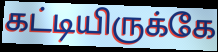
கட்டியிருக்கே